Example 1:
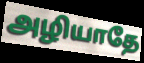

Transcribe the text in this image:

அழியாதே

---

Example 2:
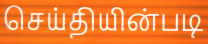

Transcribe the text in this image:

செய்தியின்படி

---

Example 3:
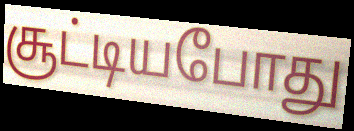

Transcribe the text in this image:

சூட்டியபோது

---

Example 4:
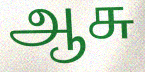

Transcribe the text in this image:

ஆசு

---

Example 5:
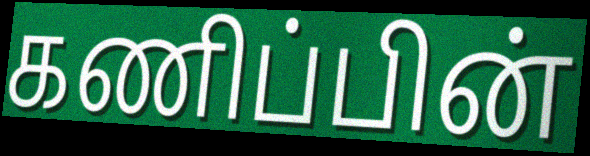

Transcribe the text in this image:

கணிப்பின்